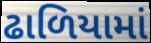
ઢાળિયામાં